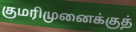
குமரிமுனைக்குத்